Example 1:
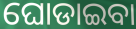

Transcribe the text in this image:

ଘୋଡାଇବା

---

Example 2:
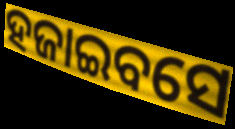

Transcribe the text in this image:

ହଜାଇବସେ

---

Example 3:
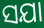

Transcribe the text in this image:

ସଯା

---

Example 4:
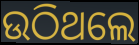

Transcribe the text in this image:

ଉଠିଥଲେ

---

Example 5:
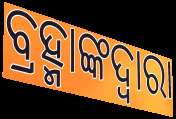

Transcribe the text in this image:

ବ୍ରହ୍ମାଙ୍କଦ୍ୱାରା